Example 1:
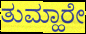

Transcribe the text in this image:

ತುಮ್ಹಾರೇ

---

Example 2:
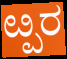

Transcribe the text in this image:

ೞ್ಪರ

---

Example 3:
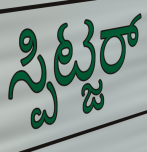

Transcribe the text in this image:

ಸ್ಪಿಟ್ಜರ್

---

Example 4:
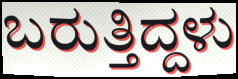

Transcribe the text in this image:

ಬರುತ್ತಿದ್ದಳು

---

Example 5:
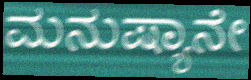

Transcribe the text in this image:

ಮನುಷ್ಯಾನೇ